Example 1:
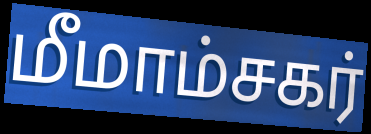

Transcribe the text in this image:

மீமாம்சகர்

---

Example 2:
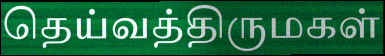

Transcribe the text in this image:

தெய்வத்திருமகள்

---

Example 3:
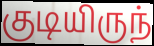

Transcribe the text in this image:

குடியிருந்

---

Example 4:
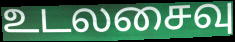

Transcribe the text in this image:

உடலசைவு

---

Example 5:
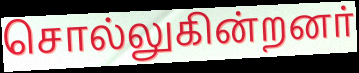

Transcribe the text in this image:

சொல்லுகின்றனர்